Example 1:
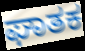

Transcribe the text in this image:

ಘಾತಕ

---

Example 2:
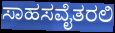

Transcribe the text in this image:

ಸಾಹಸವೈತರಲಿ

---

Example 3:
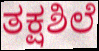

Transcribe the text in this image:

ತಕ್ಷಶಿಲೆ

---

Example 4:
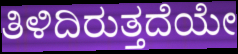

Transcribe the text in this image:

ತಿಳಿದಿರುತ್ತದೆಯೇ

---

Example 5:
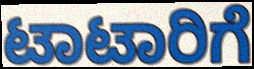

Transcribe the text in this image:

ಟಾಟಾರಿಗೆ